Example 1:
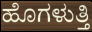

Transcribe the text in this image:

ಹೊಗಳುತ್ತಿ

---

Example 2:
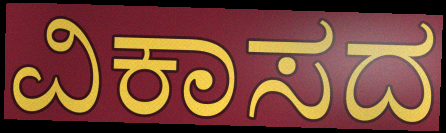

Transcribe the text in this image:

ವಿಕಾಸದ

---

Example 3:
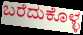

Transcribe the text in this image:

ಬರೆದುಕೊಳ್ಳ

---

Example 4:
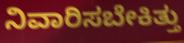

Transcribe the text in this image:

ನಿವಾರಿಸಬೇಕಿತ್ತು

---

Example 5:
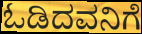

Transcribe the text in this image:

ಓಡಿದವನಿಗೆ